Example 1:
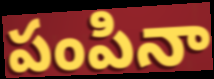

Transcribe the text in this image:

పంపినా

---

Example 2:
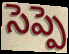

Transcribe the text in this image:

సెప్పె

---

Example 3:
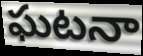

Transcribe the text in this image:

ఘటనా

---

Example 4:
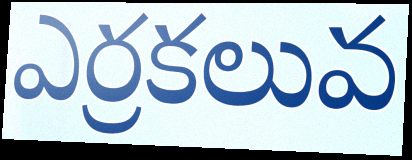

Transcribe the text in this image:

ఎర్రకలువ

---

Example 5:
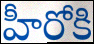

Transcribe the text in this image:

హీరోకి